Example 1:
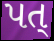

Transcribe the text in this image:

પત્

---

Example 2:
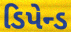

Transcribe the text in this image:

ડિપેન્ડ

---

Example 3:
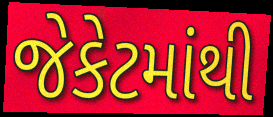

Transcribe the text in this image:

જેકેટમાંથી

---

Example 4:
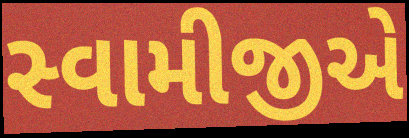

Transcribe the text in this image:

સ્વામીજીએ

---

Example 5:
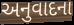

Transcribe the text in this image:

અનુવાદના